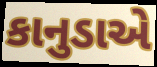
કાનુડાએ